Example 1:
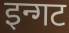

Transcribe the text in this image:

इन्गट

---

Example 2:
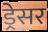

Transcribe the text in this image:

ड्रेसर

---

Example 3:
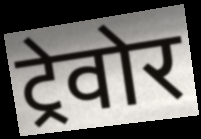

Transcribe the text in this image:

ट्रेवोर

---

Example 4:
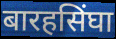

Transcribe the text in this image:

बारहसिंघा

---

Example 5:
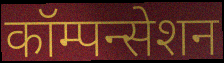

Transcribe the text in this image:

कॉम्पन्सेशन